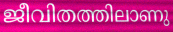
ജീവിതത്തിലാണു